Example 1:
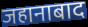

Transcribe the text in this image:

जहानाबाद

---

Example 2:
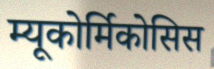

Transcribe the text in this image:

म्यूकोर्मिकोसिस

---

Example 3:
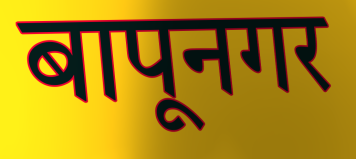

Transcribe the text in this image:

बापूनगर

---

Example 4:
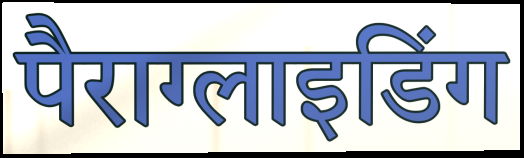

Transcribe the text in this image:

पैराग्लाइडिंग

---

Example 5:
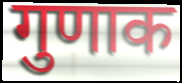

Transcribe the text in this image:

गुणाक